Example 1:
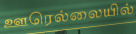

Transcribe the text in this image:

ஊரெல்லையில்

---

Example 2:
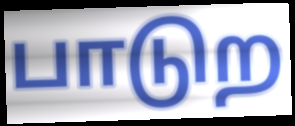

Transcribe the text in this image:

பாடுற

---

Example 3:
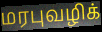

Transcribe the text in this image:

மரபுவழிக்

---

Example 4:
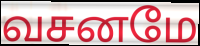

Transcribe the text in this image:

வசனமே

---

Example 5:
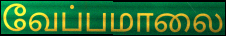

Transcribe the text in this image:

வேப்பமாலை